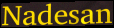
Nadesan